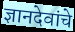
ज्ञानदेवांचे